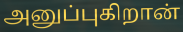
அனுப்புகிறான்